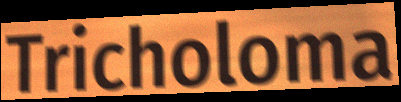
Tricholoma